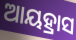
ଆୟହ୍ରାସ